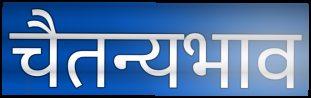
चैतन्यभाव